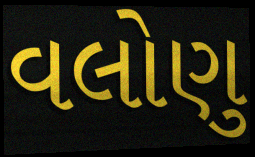
વલોણુ